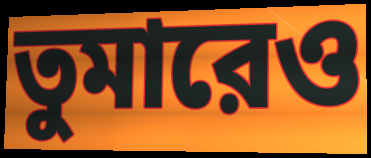
তুমারেও